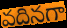
వదినగా